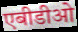
एबीडीओ